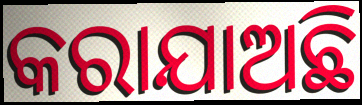
କରାଯାଅଛି